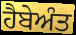
ਹੈਬੇਅੰਤ